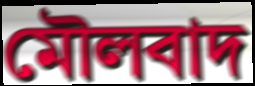
মৌলবাদ